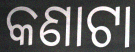
କଣାଟା